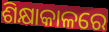
ଶିକ୍ଷାକାଳରେ